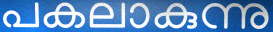
പകലാകുന്നു